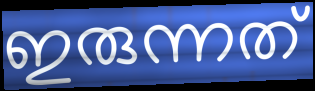
ഇരുന്നത്